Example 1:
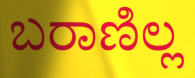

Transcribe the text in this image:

ಬರಾಣಿಲ್ಲ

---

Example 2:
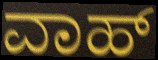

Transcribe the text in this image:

ವಾಹ್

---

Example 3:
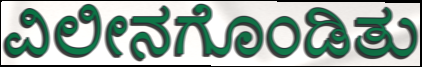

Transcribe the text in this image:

ವಿಲೀನಗೊಂಡಿತು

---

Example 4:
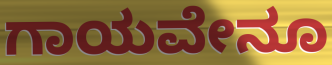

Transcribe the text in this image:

ಗಾಯವೇನೂ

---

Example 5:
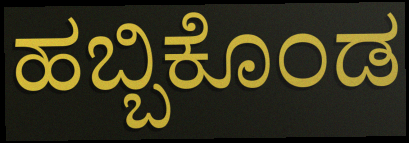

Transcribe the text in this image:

ಹಬ್ಬಿಕೊಂಡ